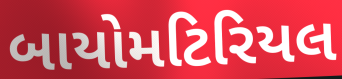
બાયોમટિરિયલ